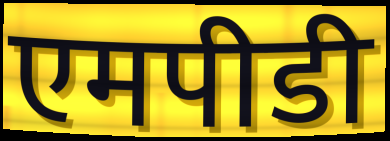
एमपीडी